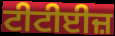
ਟੀਟੀਈਜ਼